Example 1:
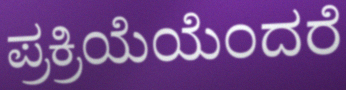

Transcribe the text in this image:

ಪ್ರಕ್ರಿಯೆಯೆಂದರೆ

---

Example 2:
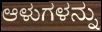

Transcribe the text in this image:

ಆಳುಗಳನ್ನು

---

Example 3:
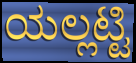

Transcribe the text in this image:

ಯಲ್ಲಟ್ಟಿ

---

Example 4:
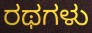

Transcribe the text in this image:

ರಥಗಳು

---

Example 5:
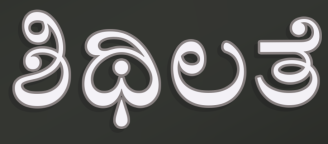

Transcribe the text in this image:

ಶಿಥಿಲತೆ